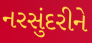
નરસુંદરીને